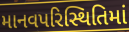
માનવપરિસ્થિતિમાં